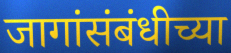
जागांसंबंधीच्या